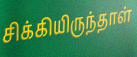
சிக்கியிருந்தாள்